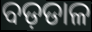
ବଡ଼ଡାଳ